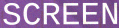
SCREEN